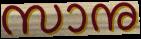
സാനു